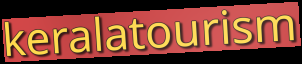
keralatourism